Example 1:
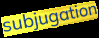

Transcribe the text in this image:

subjugation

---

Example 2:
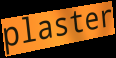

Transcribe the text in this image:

plaster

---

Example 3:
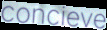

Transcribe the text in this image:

concieve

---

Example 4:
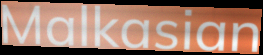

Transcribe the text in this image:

Malkasian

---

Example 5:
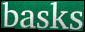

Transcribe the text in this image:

basks